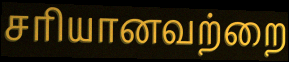
சரியானவற்றை